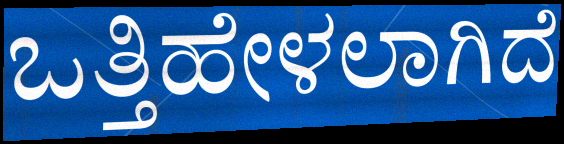
ಒತ್ತಿಹೇಳಲಾಗಿದೆ